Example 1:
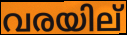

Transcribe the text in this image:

വരയില്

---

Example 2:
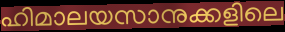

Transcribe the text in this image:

ഹിമാലയസാനുക്കളിലെ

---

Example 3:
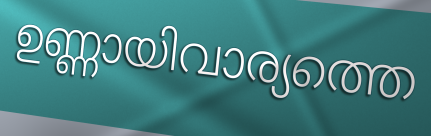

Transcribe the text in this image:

ഉണ്ണായിവാര്യത്തെ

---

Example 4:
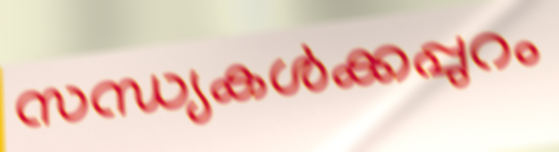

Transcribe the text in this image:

സന്ധ്യകൾക്കപ്പുറം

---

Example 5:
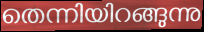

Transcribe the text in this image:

തെന്നിയിറങ്ങുന്നു